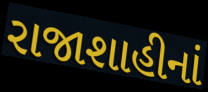
રાજાશાહીનાં